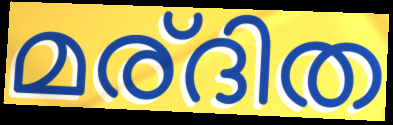
മര്ദിത